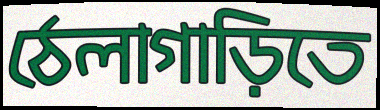
ঠেলাগাড়িতে